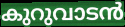
കുറുവാടൻ